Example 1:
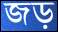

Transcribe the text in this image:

জড়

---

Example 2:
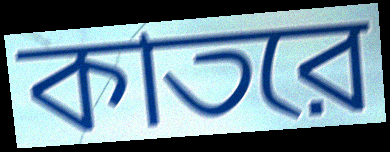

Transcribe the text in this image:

কাতরে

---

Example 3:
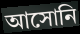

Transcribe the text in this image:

আসোনি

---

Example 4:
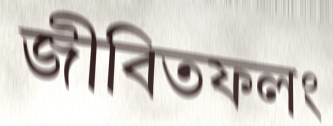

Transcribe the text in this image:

জীবিতফলং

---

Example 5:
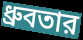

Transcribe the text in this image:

ধ্রুবতার